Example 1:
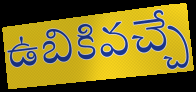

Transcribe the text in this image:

ఉబికివచ్చే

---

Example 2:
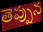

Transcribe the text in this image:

తెప్పున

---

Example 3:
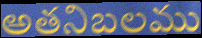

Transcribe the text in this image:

అతనిబలము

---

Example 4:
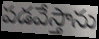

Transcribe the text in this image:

పడవేస్తాను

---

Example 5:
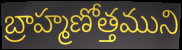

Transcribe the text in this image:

బ్రాహ్మణోత్తముని